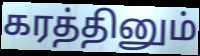
கரத்தினும்